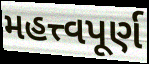
મહત્ત્વપૂર્ણ